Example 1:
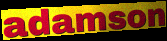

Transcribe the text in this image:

adamson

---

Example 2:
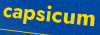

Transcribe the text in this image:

capsicum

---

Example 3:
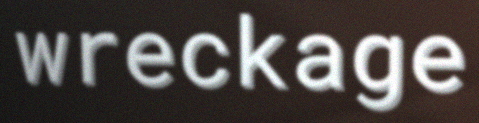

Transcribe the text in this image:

wreckage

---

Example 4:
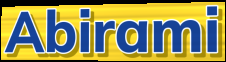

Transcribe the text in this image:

Abirami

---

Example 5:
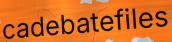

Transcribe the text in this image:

cadebatefiles